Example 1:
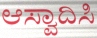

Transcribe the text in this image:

ಆಸ್ವಾದಿಸಿ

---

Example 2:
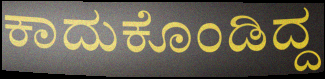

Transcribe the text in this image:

ಕಾದುಕೊಂಡಿದ್ದ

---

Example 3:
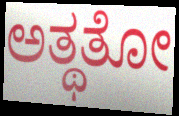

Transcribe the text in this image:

ಅತ್ಥತೋ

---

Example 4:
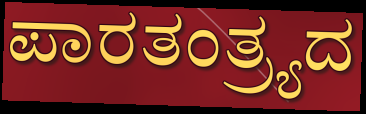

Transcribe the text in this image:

ಪಾರತಂತ್ರ್ಯದ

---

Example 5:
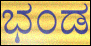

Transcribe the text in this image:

ಭಂಡ